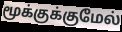
மூக்குக்குமேல்